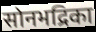
सोनभद्रिका